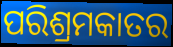
ପରିଶ୍ରମକାତର